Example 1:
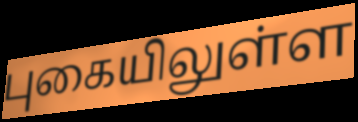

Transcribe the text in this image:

புகையிலுள்ள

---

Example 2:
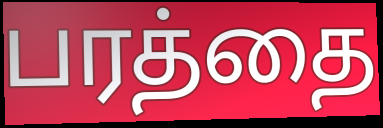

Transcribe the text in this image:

பரத்தை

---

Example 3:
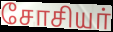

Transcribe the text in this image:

சோசியர்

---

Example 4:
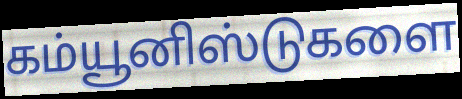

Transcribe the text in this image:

கம்யூனிஸ்டுகளை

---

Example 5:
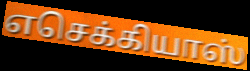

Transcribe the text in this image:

எசெக்கியாஸ்